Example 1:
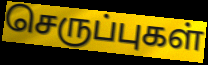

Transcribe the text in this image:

செருப்புகள்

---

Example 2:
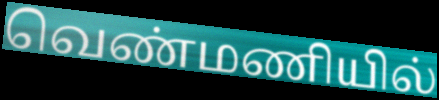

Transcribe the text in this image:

வெண்மணியில்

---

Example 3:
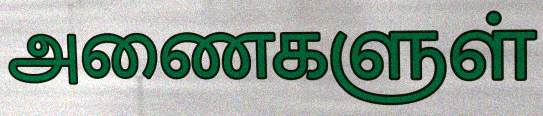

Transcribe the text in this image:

அணைகளுள்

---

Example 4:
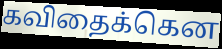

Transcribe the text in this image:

கவிதைக்கென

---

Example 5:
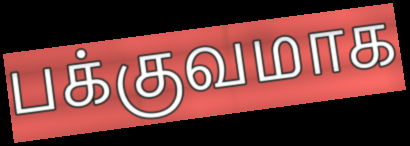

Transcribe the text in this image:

பக்குவமாக